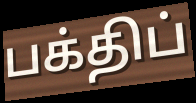
பக்திப்